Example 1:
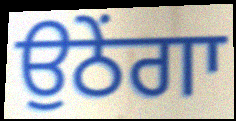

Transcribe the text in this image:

ਉਠੇਂਗਾ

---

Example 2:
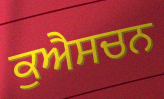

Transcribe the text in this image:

ਕੁਐਸਚਨ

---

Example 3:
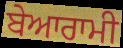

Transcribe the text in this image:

ਬੇਆਰਾਮੀ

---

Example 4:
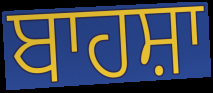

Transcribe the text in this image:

ਬਾਹਸ਼ਾ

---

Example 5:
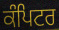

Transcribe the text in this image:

ਕੰਪਿਟਰ